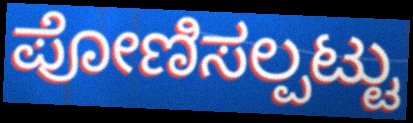
ಪೋಣಿಸಲ್ಪಟ್ಟು